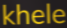
khele